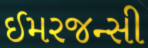
ઈમરજન્સી